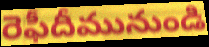
రెఫీదీమునుండి